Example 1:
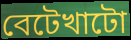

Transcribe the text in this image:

বেটেখাটো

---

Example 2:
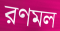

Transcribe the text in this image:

রণমল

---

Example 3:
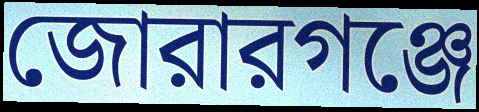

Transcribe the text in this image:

জোরারগঞ্জে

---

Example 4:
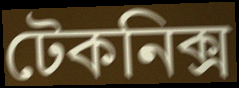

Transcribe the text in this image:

টেকনিক্স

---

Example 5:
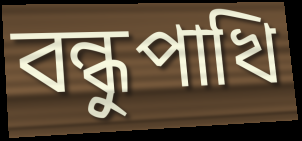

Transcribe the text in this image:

বন্ধুপাখি